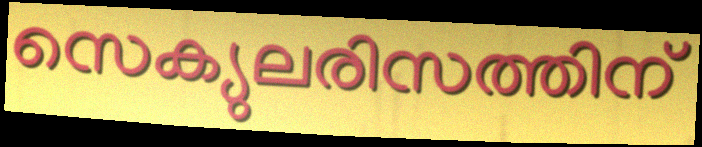
സെക്യുലരിസത്തിന്